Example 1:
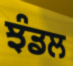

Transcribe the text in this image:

ਝੰਡਲ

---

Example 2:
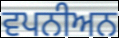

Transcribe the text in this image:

ਵਪਨੀਅਨ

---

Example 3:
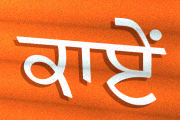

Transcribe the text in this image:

ਕਾਏਂ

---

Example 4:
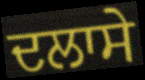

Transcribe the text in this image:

ਦਲਾਸੇ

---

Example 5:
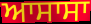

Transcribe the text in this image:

ਆਸਾਸਾ